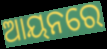
ଆୟନରେ